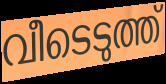
വീടെടുത്ത്